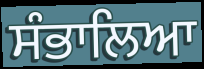
ਸੰਭਾਲਿਆ